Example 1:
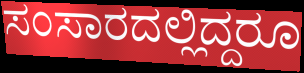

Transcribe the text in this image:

ಸಂಸಾರದಲ್ಲಿದ್ದರೂ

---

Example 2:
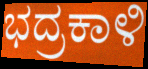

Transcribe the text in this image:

ಭದ್ರಕಾಳಿ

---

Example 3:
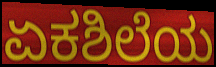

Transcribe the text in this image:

ಏಕಶಿಲೆಯ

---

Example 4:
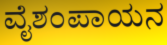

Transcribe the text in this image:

ವೈಶಂಪಾಯನ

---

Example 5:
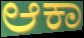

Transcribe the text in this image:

ಆಕಾ